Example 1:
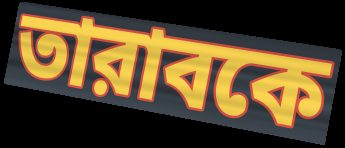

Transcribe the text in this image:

তারাবকে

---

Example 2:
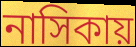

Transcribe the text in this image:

নাসিকায়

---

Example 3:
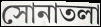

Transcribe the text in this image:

সোনাতলা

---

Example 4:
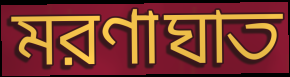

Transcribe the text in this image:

মরণাঘাত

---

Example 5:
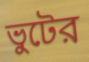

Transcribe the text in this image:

ভুটের